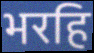
भरहि